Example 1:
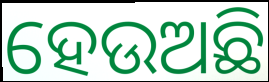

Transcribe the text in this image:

ହେଉଅଛି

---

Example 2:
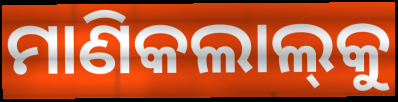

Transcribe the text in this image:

ମାଣିକଲାଲ୍‍କୁ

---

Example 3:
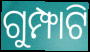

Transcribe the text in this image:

ଗୁମ୍ଫାଟି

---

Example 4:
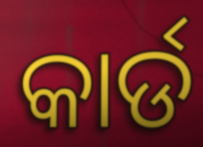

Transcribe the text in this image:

କାର୍ଡ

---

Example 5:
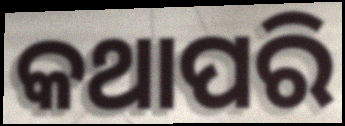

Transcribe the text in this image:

କଥାପରି